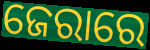
ଜେରାରେ